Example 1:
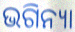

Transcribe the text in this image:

ଭଗିନ୍ୟା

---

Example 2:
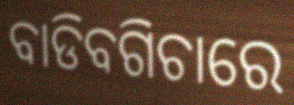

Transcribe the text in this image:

ବାଡିବଗିଚାରେ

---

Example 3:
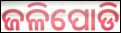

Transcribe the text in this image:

ଜଳିପୋଡି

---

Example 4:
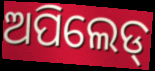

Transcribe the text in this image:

ଅପିଲେଡ୍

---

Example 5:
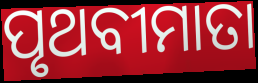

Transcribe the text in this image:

ପୃଥବୀମାତା